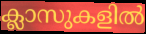
ക്ലാസുകളിൽ